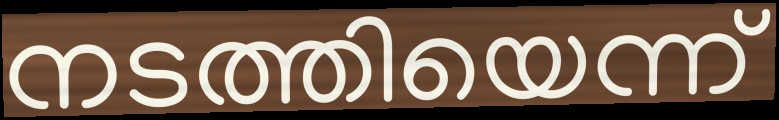
നടത്തിയെന്ന്